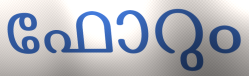
ഫോറും